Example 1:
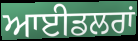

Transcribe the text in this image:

ਆਈਡਲਰਾਂ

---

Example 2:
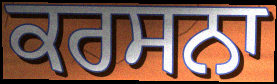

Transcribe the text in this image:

ਕਰਸਨਾ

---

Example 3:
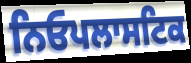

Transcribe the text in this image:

ਨਿਓਪਲਾਸਟਿਕ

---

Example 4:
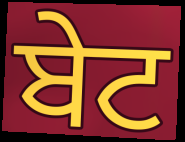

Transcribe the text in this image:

ਬੇਟ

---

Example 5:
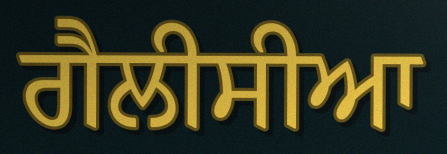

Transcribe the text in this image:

ਗੈਲੀਸੀਆ